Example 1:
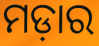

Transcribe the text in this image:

ମଡ଼ାର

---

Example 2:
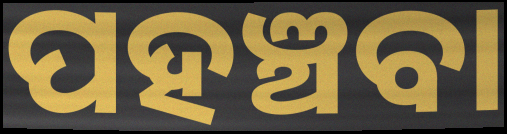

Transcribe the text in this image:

ପହଞ୍ଚବା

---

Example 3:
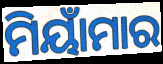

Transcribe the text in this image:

ମିୟାଁମାର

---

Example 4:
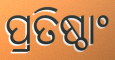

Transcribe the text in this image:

ପ୍ରତିଷ୍ଠାଂ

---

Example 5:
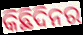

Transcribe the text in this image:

କିଛିଦିନର